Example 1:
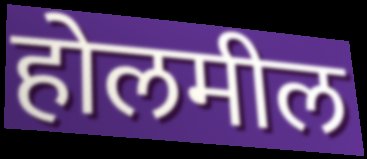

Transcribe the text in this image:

होलमील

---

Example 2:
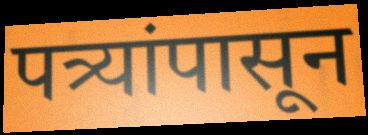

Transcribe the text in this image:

पत्र्यांपासून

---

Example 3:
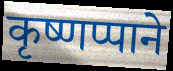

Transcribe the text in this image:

कृष्णप्पाने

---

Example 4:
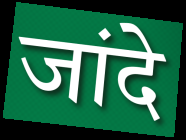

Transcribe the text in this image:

जांदे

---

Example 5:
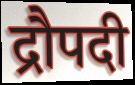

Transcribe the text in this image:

द्रौपदी